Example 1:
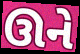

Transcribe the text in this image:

ઊને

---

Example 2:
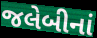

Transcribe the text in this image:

જલેબીનાં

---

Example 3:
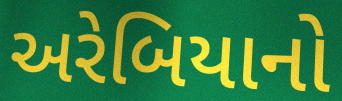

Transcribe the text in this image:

અરેબિયાનો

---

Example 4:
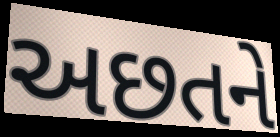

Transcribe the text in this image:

અછતને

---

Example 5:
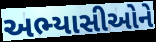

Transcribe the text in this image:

અભ્યાસીઓને